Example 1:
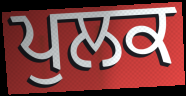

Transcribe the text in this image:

ਪੁਲਕ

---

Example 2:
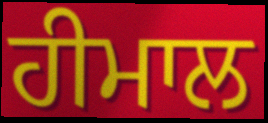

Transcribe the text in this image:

ਹੀਮਾਲ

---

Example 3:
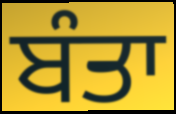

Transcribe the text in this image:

ਬੰਤਾ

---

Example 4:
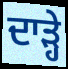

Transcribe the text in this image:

ਦਾੜ੍ਹੇ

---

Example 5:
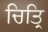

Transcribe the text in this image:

ਚਿਤ੍ਰਿ